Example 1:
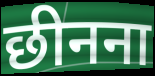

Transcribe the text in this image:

छीनना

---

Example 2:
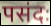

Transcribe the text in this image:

पसंदः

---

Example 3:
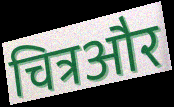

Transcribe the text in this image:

चित्रऔर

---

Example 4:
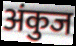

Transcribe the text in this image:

अंकुज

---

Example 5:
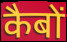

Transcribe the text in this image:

कैबों